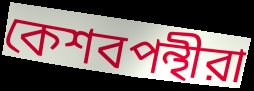
কেশবপন্থীরা